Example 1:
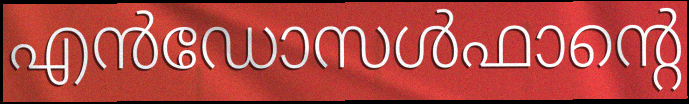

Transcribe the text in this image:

എൻഡോസൾഫാന്റെ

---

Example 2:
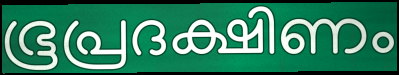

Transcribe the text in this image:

ഭൂപ്രദക്ഷിണം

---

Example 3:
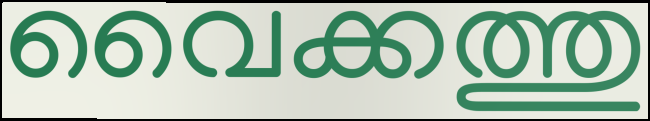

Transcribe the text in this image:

വൈക്കത്തു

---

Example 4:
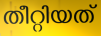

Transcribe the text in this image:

തീറ്റിയത്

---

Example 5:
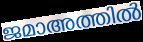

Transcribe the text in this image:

ജമാഅത്തിൽ